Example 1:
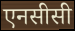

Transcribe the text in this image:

एनसीसी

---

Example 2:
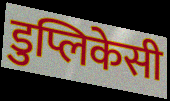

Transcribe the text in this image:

डुप्लिकेसी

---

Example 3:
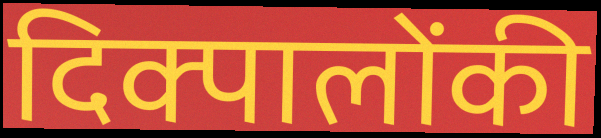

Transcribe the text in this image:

दिक्पालोंकी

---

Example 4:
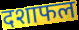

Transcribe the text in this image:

दशाफल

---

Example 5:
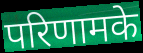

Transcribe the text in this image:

परिणामके